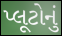
પ્લૂટોનું